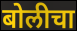
बोलीचा